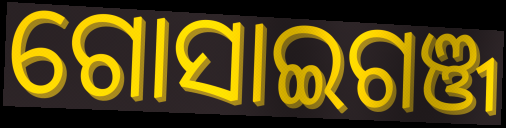
ଗୋସାଇଗଞ୍ଜ